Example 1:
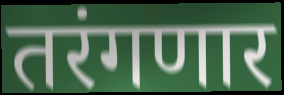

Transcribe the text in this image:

तरंगणार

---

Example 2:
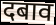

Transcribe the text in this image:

दबाव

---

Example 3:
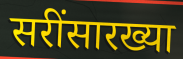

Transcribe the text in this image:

सरींसारख्या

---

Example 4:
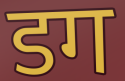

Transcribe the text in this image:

डग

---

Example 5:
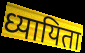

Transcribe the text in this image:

ध्यायिता